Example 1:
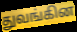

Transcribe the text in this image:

துவங்கின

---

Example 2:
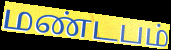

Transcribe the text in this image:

மண்டபம்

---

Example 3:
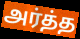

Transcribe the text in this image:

அர்த்த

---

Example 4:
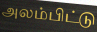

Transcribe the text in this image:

அலம்பிட்டு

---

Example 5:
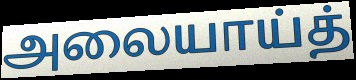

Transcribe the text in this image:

அலையாய்த்